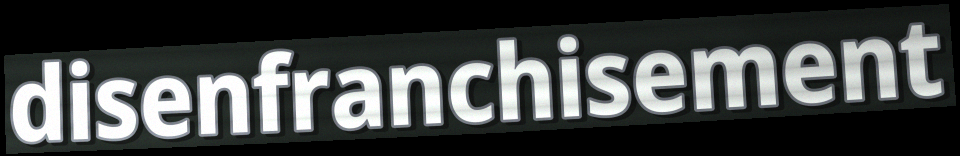
disenfranchisement